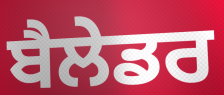
ਬੈਲੇਡਰ